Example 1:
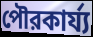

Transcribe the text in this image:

পৌরকার্য্য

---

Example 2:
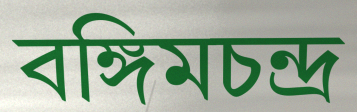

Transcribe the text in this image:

বঙ্গিমচন্দ্র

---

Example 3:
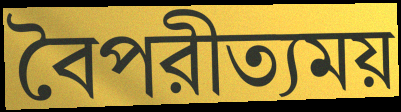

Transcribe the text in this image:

বৈপরীত্যময়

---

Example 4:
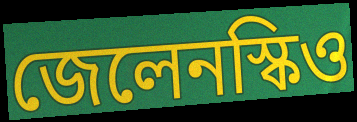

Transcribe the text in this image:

জেলেনস্কিও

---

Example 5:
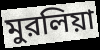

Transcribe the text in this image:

মুরলিয়া